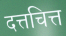
दत्तचित्त